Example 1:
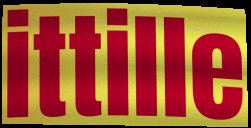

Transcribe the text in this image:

ittille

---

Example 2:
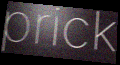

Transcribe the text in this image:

prick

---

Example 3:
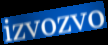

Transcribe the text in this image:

izvozvo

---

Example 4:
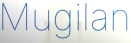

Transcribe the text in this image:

Mugilan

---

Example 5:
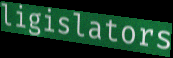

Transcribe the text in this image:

ligislators